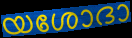
യശോദാ